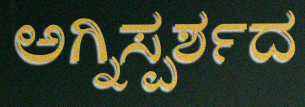
ಅಗ್ನಿಸ್ಪರ್ಶದ